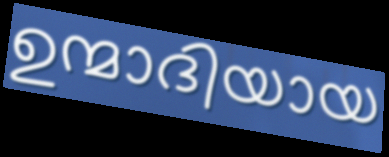
ഉന്മാദിയായ